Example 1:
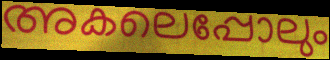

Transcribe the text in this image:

അകലെപ്പോലും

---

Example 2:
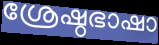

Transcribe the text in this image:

ശ്രേഷ്ഠഭാഷാ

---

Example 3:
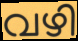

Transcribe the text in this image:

വഴി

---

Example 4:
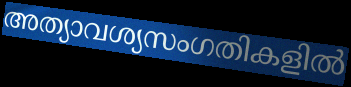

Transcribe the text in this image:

അത്യാവശ്യസംഗതികളിൽ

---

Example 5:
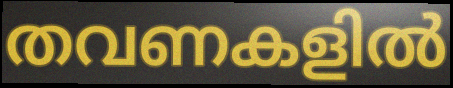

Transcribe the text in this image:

തവണകളിൽ